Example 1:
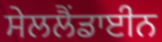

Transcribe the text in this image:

ਸੇਲਲੈਂਡਾਈਨ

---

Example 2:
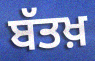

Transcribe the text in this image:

ਬੱਤਖ਼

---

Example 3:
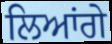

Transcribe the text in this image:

ਲਿਆਂਗੇ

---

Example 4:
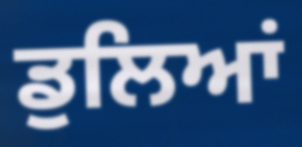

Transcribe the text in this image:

ਡੁਲਿਆਂ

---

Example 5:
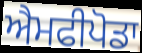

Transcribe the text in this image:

ਐਮਫੀਪੋਡਾ